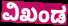
ವಿಖಂಡ